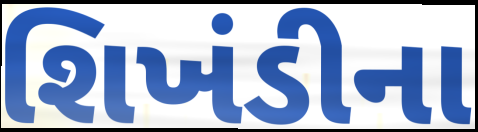
શિખંડીના